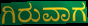
ಗಿರುವಾಗ